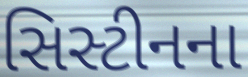
સિસ્ટીનના